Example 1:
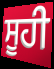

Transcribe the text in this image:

ਸੂਹੀ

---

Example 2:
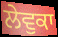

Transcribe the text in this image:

ਲੇਵੁਕਾ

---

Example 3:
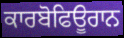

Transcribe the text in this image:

ਕਾਰਬੋਫਿਊਰਾਨ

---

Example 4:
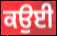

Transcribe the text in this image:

ਕਉਈ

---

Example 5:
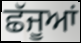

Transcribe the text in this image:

ਛੱਜੂਆਂ